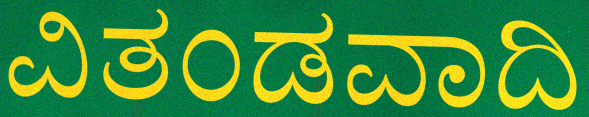
ವಿತಂಡವಾದಿ